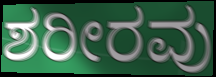
ಶರೀರವು